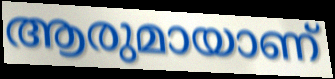
ആരുമായാണ്